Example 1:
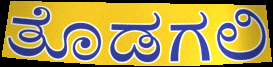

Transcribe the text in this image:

ತೊಡಗಲಿ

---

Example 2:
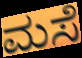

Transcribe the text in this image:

ಮಸೆ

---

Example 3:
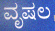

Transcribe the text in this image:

ವೃಷಲ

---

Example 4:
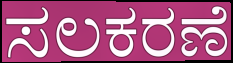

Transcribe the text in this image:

ಸಲಕರಣೆ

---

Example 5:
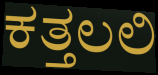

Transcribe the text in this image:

ಕತ್ತಲಲಿ